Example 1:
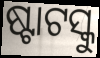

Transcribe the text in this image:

ଷ୍ଟାଟସ୍କୁ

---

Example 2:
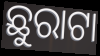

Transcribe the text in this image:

ଛୁରାଟା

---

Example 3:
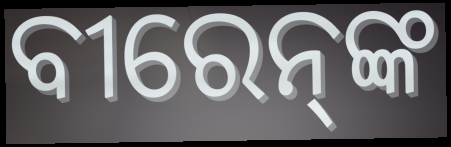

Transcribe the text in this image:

ବୀରେନ୍‍ଙ୍କ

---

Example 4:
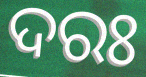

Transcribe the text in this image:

ଦରଃ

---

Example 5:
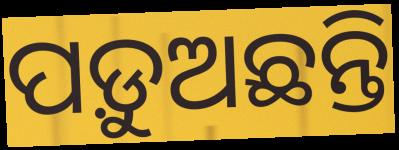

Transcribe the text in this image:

ପଡ଼ୁଅଛନ୍ତି